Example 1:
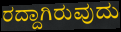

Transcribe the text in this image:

ರದ್ದಾಗಿರುವುದು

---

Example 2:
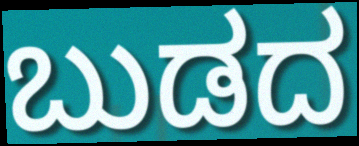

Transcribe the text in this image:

ಬುಡದ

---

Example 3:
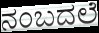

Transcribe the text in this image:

ನಂಬದಲೆ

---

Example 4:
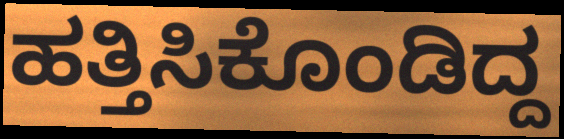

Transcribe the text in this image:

ಹತ್ತಿಸಿಕೊಂಡಿದ್ದ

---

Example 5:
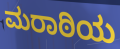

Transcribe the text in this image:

ಮರಾಠಿಯ